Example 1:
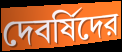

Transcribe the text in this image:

দেবর্ষিদের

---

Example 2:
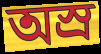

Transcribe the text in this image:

অস্র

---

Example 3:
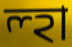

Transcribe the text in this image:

ল্হা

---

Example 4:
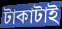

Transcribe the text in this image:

টাকাটাই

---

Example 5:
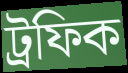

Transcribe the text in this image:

ট্রফিক